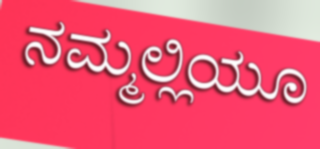
ನಮ್ಮಲ್ಲಿಯೂ